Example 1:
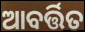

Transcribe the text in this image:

ଆବର୍ତ୍ତିତ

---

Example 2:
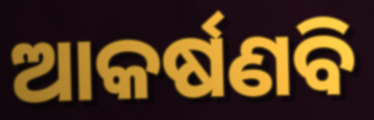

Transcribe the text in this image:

ଆକର୍ଷଣବି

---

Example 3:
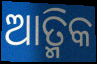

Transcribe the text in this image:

ଆତ୍ମିକ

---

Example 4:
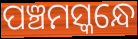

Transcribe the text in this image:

ପଞ୍ଚମସ୍କନ୍ଧେ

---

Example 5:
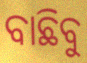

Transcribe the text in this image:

ବାଛିବୁ